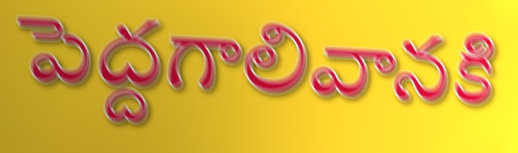
పెద్దగాలివానకి